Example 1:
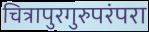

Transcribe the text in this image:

चित्रापुरगुरुपरंपरा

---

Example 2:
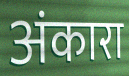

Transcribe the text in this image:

अंकारा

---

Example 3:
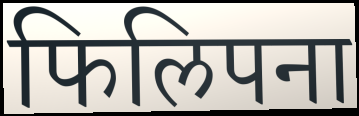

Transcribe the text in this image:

फिलिपना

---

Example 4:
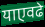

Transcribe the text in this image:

याएवढे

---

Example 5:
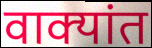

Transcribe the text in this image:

वाक्यांत